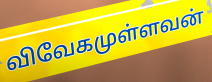
விவேகமுள்ளவன்